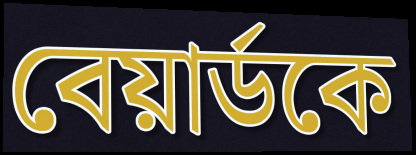
বেয়ার্ডকে